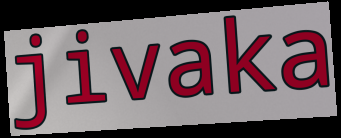
jivaka